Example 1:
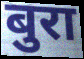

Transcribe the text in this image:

बुरा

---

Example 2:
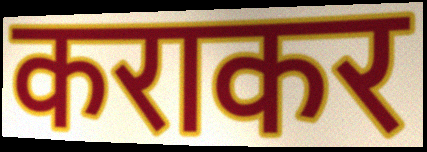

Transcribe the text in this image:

कराकर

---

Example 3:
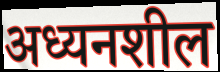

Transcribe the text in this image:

अध्यनशील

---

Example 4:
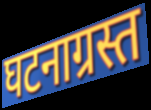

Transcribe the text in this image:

घटनाग्रस्त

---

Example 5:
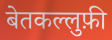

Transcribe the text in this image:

बेतकल्लुफ़ी